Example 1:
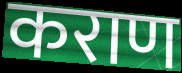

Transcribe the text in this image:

कराण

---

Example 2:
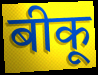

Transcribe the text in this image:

बीकू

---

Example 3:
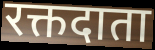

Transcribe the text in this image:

रक्तदाता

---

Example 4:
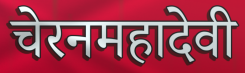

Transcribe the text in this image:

चेरनमहादेवी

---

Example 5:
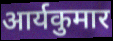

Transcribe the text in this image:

आर्यकुमार